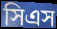
সিএস